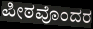
ಪೀಠವೊಂದರ